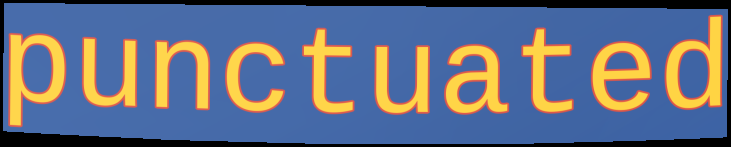
punctuated